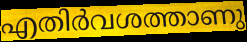
എതിർവശത്താണു